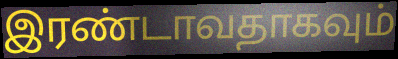
இரண்டாவதாகவும்